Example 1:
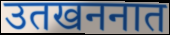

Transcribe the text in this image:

उतखननात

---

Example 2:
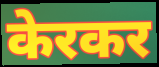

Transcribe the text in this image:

केरकर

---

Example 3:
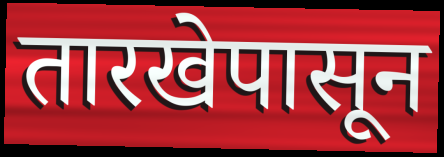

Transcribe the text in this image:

तारखेपासून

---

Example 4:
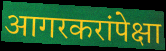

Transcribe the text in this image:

आगरकरांपेक्षा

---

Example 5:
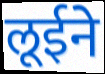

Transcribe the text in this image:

लूईने